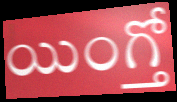
యింగ్తో